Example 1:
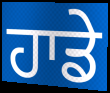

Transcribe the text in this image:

ਹਾਡੇ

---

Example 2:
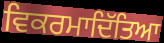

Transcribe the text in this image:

ਵਿਕਰਮਾਦਿੱਤਿਆ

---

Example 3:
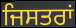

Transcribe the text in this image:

ਜਿਸਤਰਾਂ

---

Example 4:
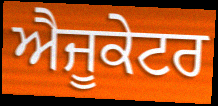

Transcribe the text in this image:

ਐਜੂਕੇਟਰ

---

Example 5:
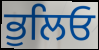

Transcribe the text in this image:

ਭੁਲਿਓ